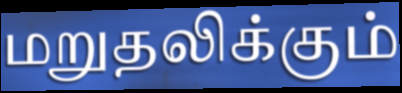
மறுதலிக்கும்